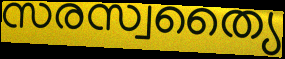
സരസ്വത്യൈ